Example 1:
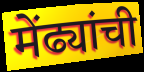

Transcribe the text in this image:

मेंढ्यांची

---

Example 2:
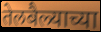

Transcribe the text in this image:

तेलबैल्याच्या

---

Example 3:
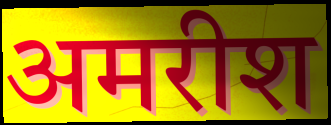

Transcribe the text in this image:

अमरीश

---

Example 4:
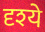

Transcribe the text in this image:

दृश्‍ये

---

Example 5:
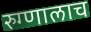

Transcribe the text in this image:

रुग्णालाच